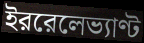
ইররেলেভ্যাণ্ট